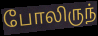
போலிருந்